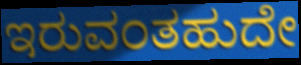
ಇರುವಂತಹುದೇ